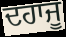
ਦਹਾਜੂ